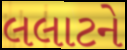
લલાટને